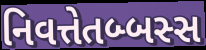
નિવત્તેતબ્બસ્સ